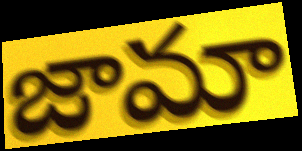
జామా